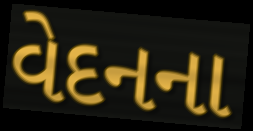
વેદનના